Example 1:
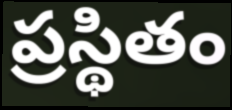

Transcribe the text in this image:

ప్రస్థితం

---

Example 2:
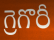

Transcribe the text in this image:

గ్రెగొరీ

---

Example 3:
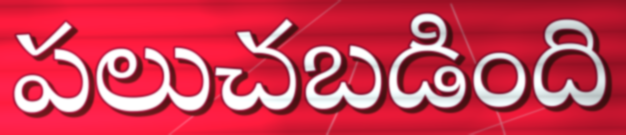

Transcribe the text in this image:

పలుచబడింది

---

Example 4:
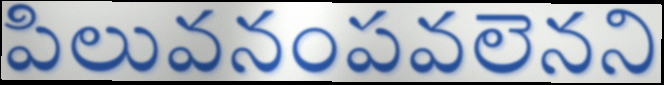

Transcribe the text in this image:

పిలువనంపవలెనని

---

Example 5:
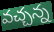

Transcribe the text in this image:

వచ్చన్న